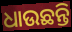
ଧାଉଛନ୍ତି